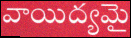
వాయిద్యమై